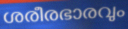
ശരീരഭാരവും